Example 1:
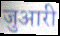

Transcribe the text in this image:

जुआरी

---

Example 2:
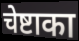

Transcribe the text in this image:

चेष्टाका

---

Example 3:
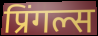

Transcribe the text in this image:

प्रिंगल्स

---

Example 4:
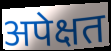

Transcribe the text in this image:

अपेक्षत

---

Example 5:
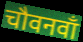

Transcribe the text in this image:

चौवनवाँ